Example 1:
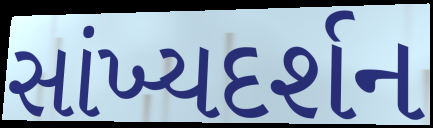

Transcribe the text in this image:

સાંખ્યદર્શન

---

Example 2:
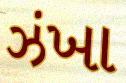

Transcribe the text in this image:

ઝંખા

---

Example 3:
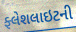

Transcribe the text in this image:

ફ્લેશલાઇટની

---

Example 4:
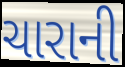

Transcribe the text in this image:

ચારાની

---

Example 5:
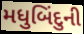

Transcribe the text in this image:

મધુબિંદુની